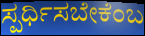
ಸ್ಪರ್ಧಿಸಬೇಕೆಂಬ